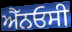
ਐੱਨਓਸੀ